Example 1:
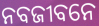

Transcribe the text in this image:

ନବଜୀବନେ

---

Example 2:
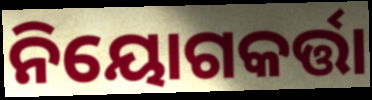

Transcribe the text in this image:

ନିୟୋଗକର୍ତ୍ତା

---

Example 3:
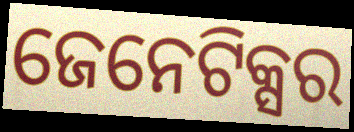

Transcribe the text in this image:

ଜେନେଟିକ୍ସର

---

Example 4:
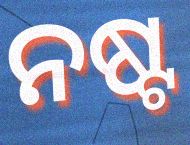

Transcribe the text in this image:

ନଷ୍ଟ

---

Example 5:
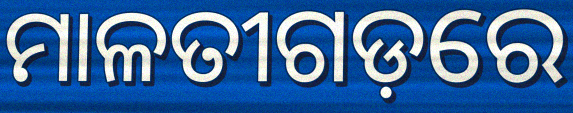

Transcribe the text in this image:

ମାଳତୀଗଡ଼ରେ